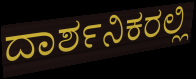
ದಾರ್ಶನಿಕರಲ್ಲಿ